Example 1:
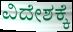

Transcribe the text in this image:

ವಿದೇಶಕ್ಕೆ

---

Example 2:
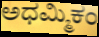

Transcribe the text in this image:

ಅಧಮ್ಮಿಕಂ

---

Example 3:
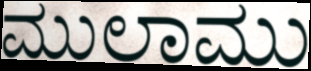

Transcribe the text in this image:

ಮುಲಾಮು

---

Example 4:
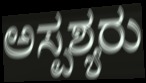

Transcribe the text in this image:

ಅಸ್ಪಶ್ಯರು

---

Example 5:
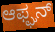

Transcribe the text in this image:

ಆಫ್ಘನ್